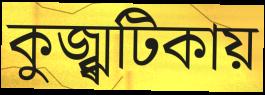
কুজ্ঝ্বটিকায়